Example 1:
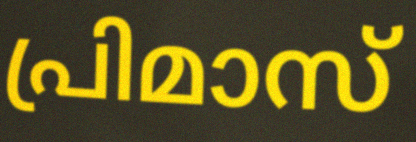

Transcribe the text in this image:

പ്രിമാസ്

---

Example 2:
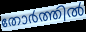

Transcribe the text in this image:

തോർത്തിൽ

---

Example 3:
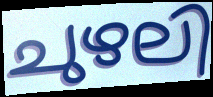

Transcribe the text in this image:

ചുഴലി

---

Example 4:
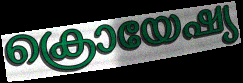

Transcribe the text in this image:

ക്രൊയേഷ്യ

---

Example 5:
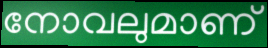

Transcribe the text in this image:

നോവലുമാണ്